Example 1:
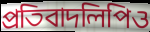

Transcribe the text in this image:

প্রতিবাদলিপিও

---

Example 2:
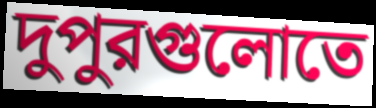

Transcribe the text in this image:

দুপুরগুলোতে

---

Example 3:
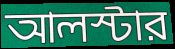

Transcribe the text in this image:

আলস্টার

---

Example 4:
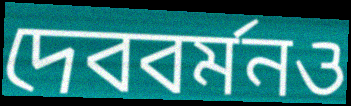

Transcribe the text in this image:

দেববর্মনও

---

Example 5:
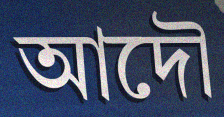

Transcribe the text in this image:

আদৌ